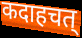
कदाहचत्